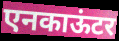
एनकाऊंटर